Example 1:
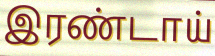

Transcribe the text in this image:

இரண்டாய்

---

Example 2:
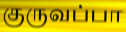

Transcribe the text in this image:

குருவப்பா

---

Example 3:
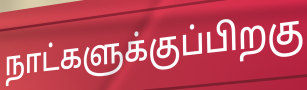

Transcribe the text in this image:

நாட்களுக்குப்பிறகு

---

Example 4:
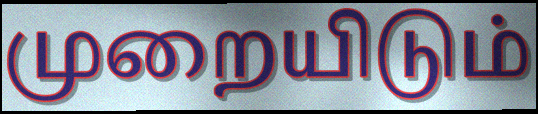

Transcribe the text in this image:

முறையிடும்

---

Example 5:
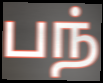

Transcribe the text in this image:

பந்